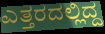
ಎತ್ತರದಲ್ಲಿದ್ದ